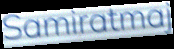
Samiratmaj